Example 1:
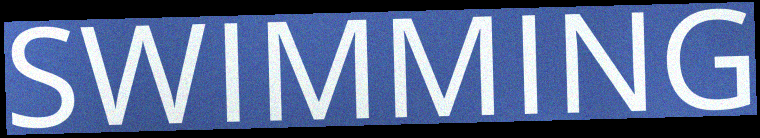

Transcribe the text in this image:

SWIMMING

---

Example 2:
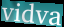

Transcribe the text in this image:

vidva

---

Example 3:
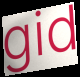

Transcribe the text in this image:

gid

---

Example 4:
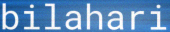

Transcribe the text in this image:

bilahari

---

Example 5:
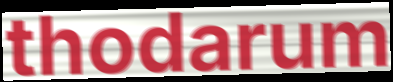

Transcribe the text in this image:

thodarum